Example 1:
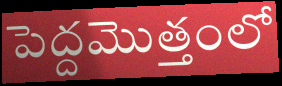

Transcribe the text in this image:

పెద్దమొత్తంలో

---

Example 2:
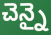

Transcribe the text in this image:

చెన్నై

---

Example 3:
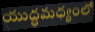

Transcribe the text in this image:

యుద్ధమధ్యంలో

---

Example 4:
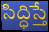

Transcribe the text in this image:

సిద్ధిస్తే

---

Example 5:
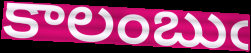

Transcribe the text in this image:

కాలంబుఁ